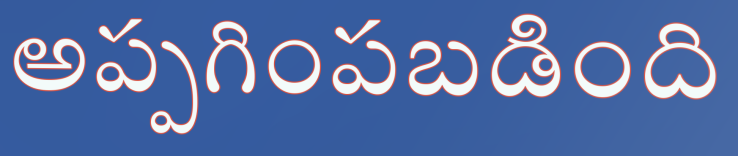
అప్పగింపబడింది